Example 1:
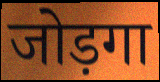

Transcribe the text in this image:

जोड़गा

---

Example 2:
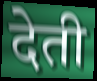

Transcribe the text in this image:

देती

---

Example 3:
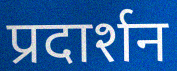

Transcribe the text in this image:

प्रदार्शन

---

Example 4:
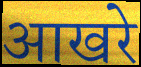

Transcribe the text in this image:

आखरे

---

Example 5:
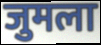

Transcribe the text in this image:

जुमला